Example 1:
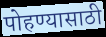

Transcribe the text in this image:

पोहण्यासाठी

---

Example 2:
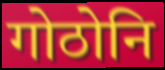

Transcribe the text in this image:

गोठोनि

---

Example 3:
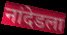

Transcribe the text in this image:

नांदेडला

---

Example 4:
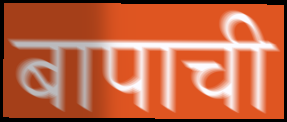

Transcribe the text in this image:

बापाची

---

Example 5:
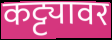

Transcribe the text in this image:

कट्ट्यावर